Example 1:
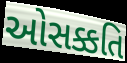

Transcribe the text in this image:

ઓસક્કતિ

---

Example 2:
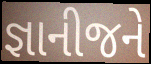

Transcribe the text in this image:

જ્ઞાનીજને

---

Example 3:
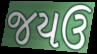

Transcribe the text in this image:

જયઉ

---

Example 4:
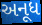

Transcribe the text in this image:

અનૂધ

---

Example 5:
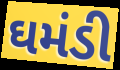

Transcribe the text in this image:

ઘમંડી